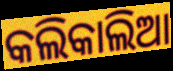
କଲିକାଲିଆ